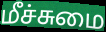
மீச்சுமை